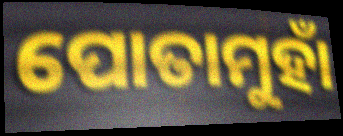
ପୋତାମୁହାଁ